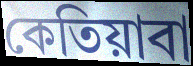
কেতিয়াবা